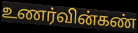
உணர்வின்கண்